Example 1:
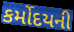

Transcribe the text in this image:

કર્મોદયની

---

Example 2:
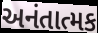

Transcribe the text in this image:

અનંતાત્મક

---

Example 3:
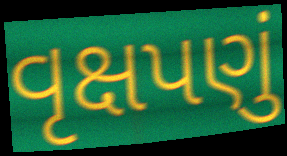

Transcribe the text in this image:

વૃક્ષપણું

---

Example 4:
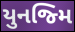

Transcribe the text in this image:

યુનજ્મિ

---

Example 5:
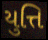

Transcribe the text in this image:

યુત્તિ